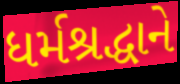
ધર્મશ્રદ્ધાને